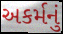
અકર્મનું